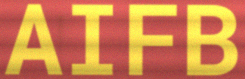
AIFB